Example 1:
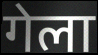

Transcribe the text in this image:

गेला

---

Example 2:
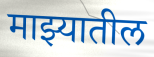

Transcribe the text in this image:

माझ्यातील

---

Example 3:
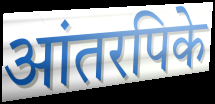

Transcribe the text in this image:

आंतरपिके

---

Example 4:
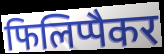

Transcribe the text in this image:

फिलिप्पैकर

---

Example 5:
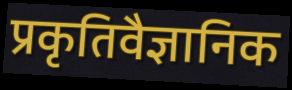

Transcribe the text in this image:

प्रकृतिवैज्ञानिक